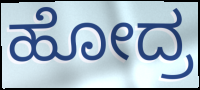
ಹೋದ್ರ